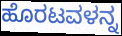
ಹೊರಟವಳನ್ನ